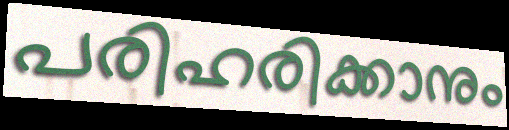
പരിഹരിക്കാനും